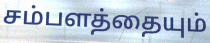
சம்பளத்தையும்